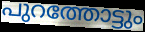
പുറത്തോട്ടും